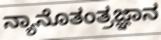
ನ್ಯಾನೊತಂತ್ರಜ್ಞಾನ